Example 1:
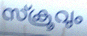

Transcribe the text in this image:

സ്ക്രൂവും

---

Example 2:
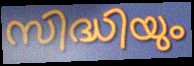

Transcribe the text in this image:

സിദ്ധിയും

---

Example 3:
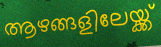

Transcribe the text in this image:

ആഴങ്ങളിലേയ്ക്ക്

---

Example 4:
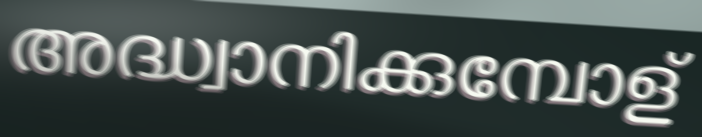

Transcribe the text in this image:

അദ്ധ്വാനിക്കുമ്പോള്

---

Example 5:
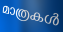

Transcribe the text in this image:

മാത്രകൾ